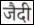
जैदी